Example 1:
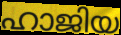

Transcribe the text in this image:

ഹാജിയ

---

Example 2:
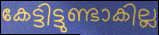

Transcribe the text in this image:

കേട്ടിട്ടുണ്ടാകില്ല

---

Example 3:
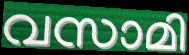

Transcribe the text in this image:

വസാമി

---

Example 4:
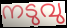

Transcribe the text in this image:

നടുവു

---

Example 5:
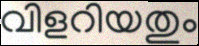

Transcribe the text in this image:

വിളറിയതും